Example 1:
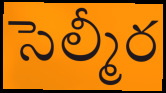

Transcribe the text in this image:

సెల్మీర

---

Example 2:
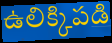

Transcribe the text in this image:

ఉలిక్కిపడి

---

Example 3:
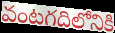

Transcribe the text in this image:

వంటగదిలోనికి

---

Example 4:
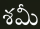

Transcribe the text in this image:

శమీ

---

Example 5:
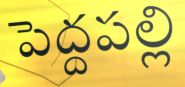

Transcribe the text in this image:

పెద్దపల్లి